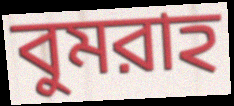
বুমরাহ